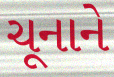
ચૂનાને